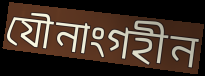
যৌনাংগহীন